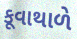
કૂવાથાળે